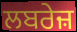
ਲਬਰੇਜ਼